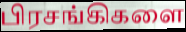
பிரசங்கிகளை